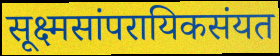
सूक्ष्मसांपरायिकसंयत